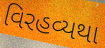
વિરહવ્યથા